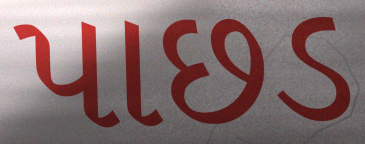
પાછડ